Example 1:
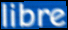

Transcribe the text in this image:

libre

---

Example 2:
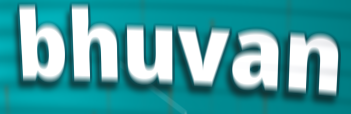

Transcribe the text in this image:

bhuvan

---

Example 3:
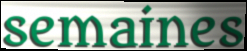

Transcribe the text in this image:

semaines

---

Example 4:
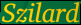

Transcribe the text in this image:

Szilard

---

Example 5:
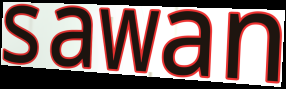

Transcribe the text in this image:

sawan